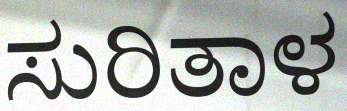
ಸುರಿತಾಳ